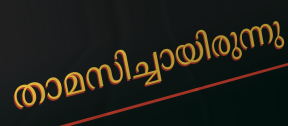
താമസിച്ചായിരുന്നു